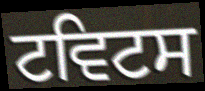
ਟਵਿਟਸ